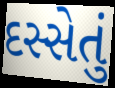
દસ્સેતું